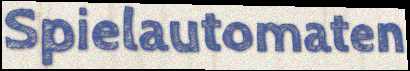
Spielautomaten